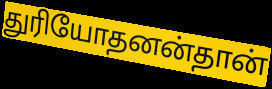
துரியோதனன்தான்